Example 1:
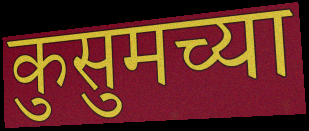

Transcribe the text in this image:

कुसुमच्या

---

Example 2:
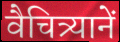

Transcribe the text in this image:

वैचित्र्यानें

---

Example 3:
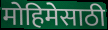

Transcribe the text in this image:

मोहिमेसाठी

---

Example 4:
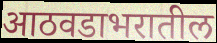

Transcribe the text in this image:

आठवडाभरातील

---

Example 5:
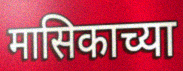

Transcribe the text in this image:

मासिकाच्या